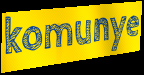
komunye